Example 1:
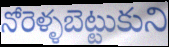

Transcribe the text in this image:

నోరెళ్ళబెట్టుకుని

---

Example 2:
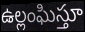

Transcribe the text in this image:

ఉల్లంఘిస్తూ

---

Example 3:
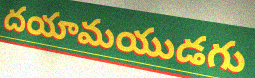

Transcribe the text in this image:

దయామయుడగు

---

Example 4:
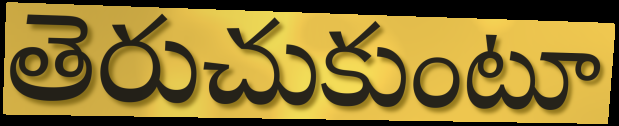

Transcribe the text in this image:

తెరుచుకుంటూ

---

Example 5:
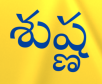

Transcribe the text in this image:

శుష్ణ